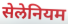
सेलेनियम